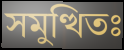
সমুত্থিতঃ